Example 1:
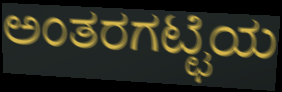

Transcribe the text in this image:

ಅಂತರಗಟ್ಟೆಯ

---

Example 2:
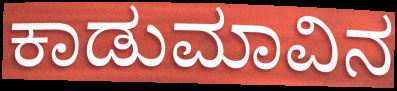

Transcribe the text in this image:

ಕಾಡುಮಾವಿನ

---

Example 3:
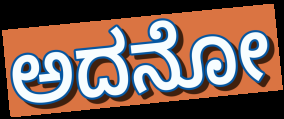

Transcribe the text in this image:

ಅದನೋ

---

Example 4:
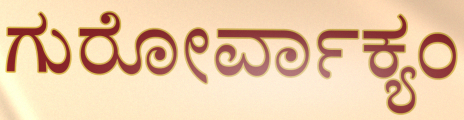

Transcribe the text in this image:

ಗುರೋರ್ವಾಕ್ಯಂ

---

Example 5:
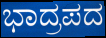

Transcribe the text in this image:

ಭಾದ್ರಪದ